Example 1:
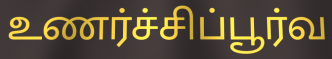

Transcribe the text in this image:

உணர்ச்சிப்பூர்வ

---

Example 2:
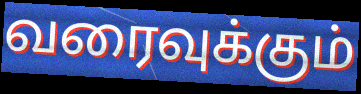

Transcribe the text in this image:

வரைவுக்கும்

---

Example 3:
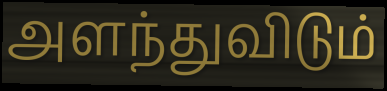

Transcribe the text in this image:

அளந்துவிடும்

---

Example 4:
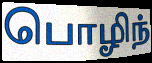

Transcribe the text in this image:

பொழிந்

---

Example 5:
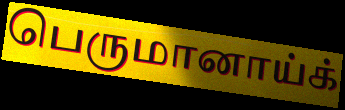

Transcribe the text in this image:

பெருமானாய்க்